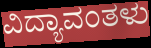
ವಿದ್ಯಾವಂತಳು